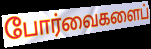
போர்வைகளைப்